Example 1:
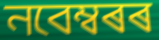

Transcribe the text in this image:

নবেম্বৰৰ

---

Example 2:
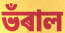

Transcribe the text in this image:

ভঁৰাল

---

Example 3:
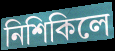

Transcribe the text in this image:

নিশিকিলে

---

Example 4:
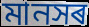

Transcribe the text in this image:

মানসৰ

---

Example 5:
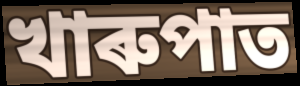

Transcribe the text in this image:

খাৰুপাত